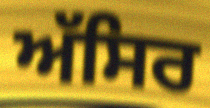
ਅੱਸਿਰ